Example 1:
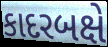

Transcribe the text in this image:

કાદરબક્ષે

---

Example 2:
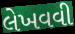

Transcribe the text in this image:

લેખવવી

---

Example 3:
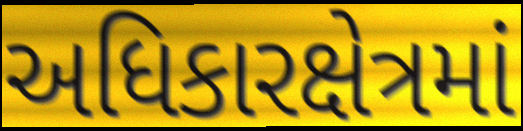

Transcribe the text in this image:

અધિકારક્ષેત્રમાં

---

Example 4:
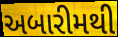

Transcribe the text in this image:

અબારીમથી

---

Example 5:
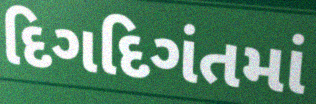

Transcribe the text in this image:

દિગદિગંતમાં